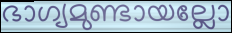
ഭാഗ്യമുണ്ടായല്ലോ